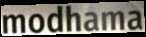
modhama